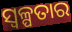
ସ୍ଵଳ୍ପତାର